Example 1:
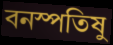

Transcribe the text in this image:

বনস্পতিষু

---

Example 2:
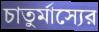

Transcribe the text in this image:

চাতুর্মাস্যের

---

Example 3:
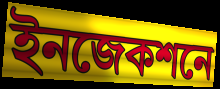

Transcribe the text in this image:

ইনজেকশনে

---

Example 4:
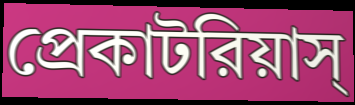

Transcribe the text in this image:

প্রেকাটরিয়াস্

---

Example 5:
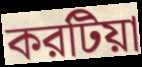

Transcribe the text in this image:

করটিয়া